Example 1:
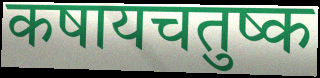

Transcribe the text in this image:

कषायचतुष्क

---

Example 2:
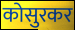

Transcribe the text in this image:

कोसुरकर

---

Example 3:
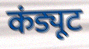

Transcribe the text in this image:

कंड्यूट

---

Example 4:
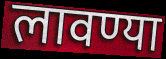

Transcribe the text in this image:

लावण्या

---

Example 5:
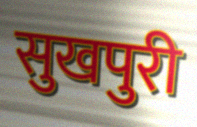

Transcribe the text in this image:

सुखपुरी